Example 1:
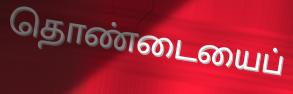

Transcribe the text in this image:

தொண்டையைப்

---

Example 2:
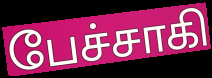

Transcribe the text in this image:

பேச்சாகி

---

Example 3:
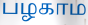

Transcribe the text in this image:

பழகாம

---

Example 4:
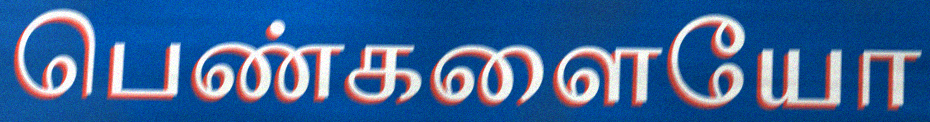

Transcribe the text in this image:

பெண்களையோ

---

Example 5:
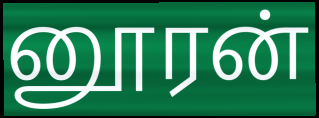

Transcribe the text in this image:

னூரன்